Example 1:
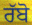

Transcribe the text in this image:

ਰੱਬੋ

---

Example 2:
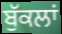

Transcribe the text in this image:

ਬੁੱਕਲਾਂ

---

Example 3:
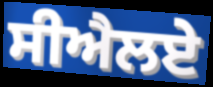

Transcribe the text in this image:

ਸੀਐਲਏ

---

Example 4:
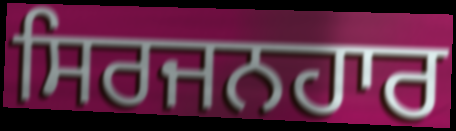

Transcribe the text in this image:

ਸਿਰਜਨਹਾਰ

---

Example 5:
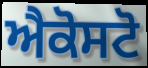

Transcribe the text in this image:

ਐਕੋਸਟੋ